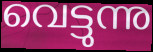
വെട്ടുന്നു